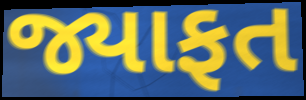
જ્યાફત